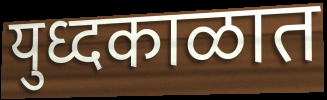
युध्दकाळात